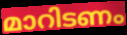
മാറിടണം